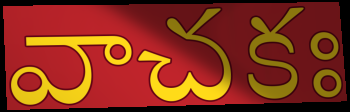
వాచకః